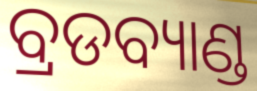
ବ୍ରଡବ୍ୟାଣ୍ଡ